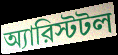
অ্যারিস্টটল